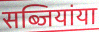
सब्जियांया